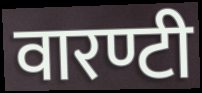
वारण्टी